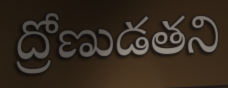
ద్రోణుడతని